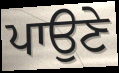
ਪਾਉਣੇ